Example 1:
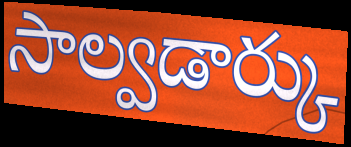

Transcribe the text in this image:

సాల్వడార్కు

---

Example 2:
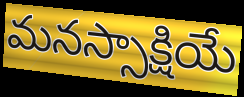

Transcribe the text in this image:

మనస్సాక్షియే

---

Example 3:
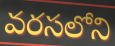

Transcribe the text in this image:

వరసలోని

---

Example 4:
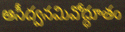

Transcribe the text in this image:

ఆసీద్వనమివోద్ధూతం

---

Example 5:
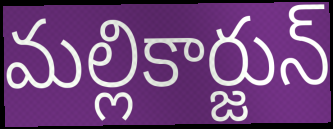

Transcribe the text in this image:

మల్లికార్జున్